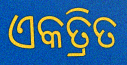
ଏକତ୍ରିତ